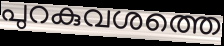
പുറകുവശത്തെ